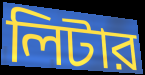
লিটার